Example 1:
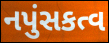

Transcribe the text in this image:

નપુંસકત્વ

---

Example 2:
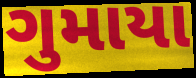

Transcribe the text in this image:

ગુમાયા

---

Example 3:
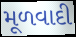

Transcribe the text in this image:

મૂળવાદી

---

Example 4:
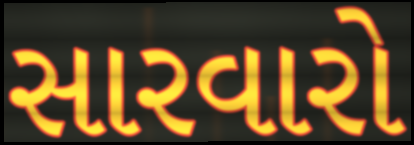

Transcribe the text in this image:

સારવારો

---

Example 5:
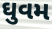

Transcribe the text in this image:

ઘુવમ